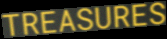
TREASURES